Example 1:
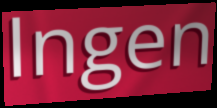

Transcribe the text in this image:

Ingen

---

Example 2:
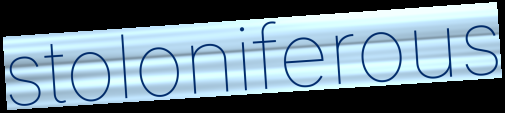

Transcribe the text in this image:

stoloniferous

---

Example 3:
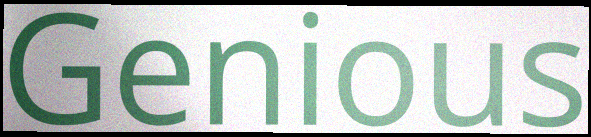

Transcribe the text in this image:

Genious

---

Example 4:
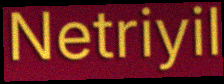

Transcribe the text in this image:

Netriyil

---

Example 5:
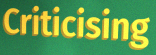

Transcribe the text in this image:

Criticising